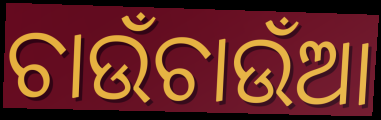
ଚାଉଁଚାଉଁଆ